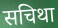
सचिथा